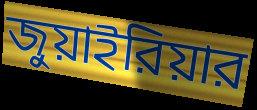
জুয়াইরিয়ার